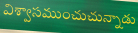
విశ్వాసముంచుచున్నాడు